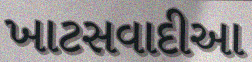
ખાટસવાદીઆ